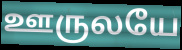
ஊருலயே